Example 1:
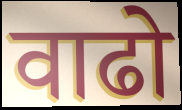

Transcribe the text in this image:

वाढो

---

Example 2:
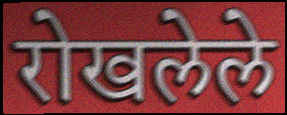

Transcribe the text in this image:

रोखलेले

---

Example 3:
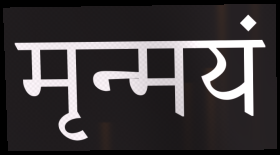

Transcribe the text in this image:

मृन्मयं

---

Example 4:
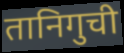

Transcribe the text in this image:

तानिगुची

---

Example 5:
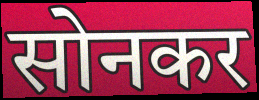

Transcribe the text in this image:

सोनकर